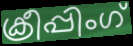
ക്രീപ്പിംഗ്